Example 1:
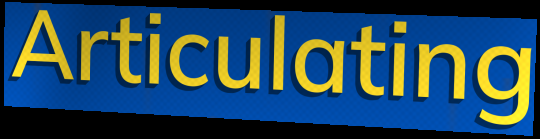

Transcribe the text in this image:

Articulating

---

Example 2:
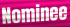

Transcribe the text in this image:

Nominee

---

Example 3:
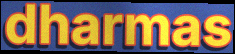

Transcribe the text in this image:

dharmas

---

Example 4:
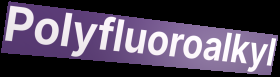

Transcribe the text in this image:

Polyfluoroalkyl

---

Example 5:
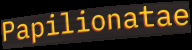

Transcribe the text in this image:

Papilionatae